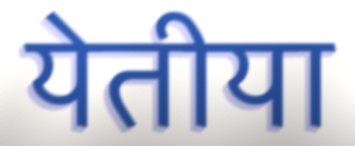
येतीया